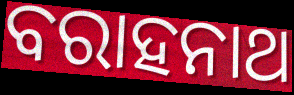
ବରାହନାଥ